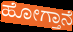
ಹೋಗ್ತಾನೆ